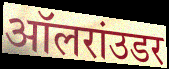
ऑलरांउडर